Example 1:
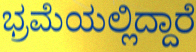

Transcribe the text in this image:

ಭ್ರಮೆಯಲ್ಲಿದ್ದಾರೆ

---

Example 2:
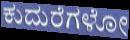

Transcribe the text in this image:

ಕುದುರೆಗಳೋ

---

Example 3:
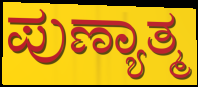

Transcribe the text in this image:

ಪುಣ್ಯಾತ್ಮ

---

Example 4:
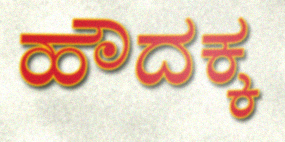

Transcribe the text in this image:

ಹೌದಕ್ಕ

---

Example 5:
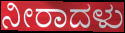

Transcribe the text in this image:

ನೀರಾದಳು